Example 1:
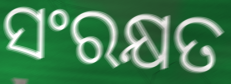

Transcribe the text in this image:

ସଂରକ୍ଷତ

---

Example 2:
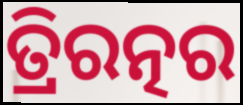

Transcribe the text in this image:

ତ୍ରିରତ୍ନର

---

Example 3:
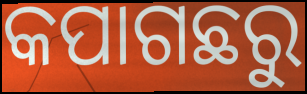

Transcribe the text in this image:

କପାଗଛରୁ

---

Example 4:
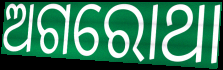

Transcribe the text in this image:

ଅଗରୋଥା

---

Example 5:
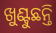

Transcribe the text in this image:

ଖୁଣ୍ଟୁଛନ୍ତି